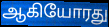
ஆகியோரது